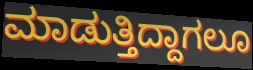
ಮಾಡುತ್ತಿದ್ದಾಗಲೂ